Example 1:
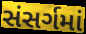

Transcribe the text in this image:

સંસર્ગમાં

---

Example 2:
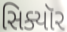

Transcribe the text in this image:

સિક્યૉર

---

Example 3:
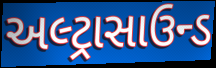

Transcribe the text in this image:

અલ્ટ્રાસાઉન્ડ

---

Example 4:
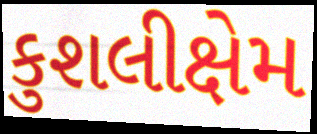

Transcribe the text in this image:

કુશલીક્ષેમ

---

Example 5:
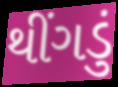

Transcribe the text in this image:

થીંગડું